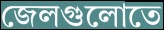
জেলগুলোতে